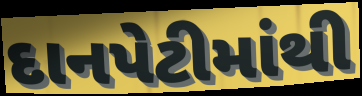
દાનપેટીમાંથી